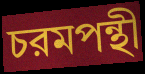
চরমপন্থী